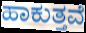
ಹಾಕುತ್ತವೆ